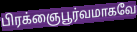
பிரக்ஞைபூர்வமாகவே